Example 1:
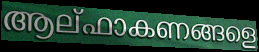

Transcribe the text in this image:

ആല്ഫാകണങ്ങളെ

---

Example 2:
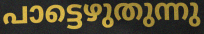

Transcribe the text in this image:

പാട്ടെഴുതുന്നു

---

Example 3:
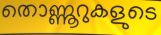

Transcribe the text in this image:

തൊണ്ണൂറുകളുടെ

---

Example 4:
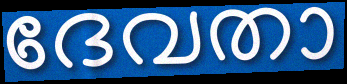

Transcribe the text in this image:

ദേവതാ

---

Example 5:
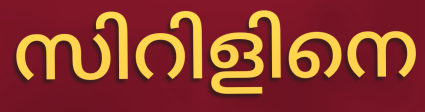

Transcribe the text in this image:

സിറിളിനെ